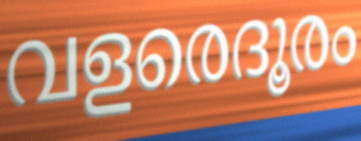
വളരെദൂരം